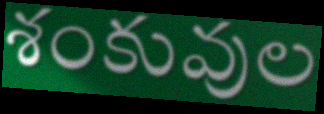
శంకువుల